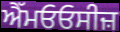
ਐੱਮਓਓਸੀਜ਼